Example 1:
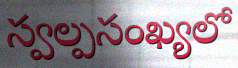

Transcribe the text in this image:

స్వల్పసంఖ్యలో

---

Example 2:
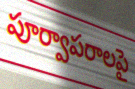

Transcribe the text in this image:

పూర్వాపరాలపై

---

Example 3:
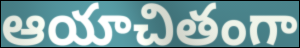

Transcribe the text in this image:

ఆయాచితంగా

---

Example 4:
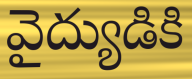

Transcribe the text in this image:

వైద్యుడికి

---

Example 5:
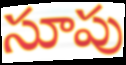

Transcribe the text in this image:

సూపు